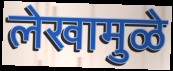
लेखामुळे